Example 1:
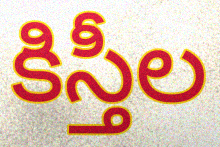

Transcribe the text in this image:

కిస్తీల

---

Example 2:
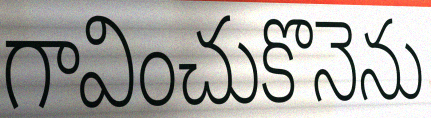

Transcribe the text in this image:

గావించుకొనెను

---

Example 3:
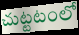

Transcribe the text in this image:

చుట్టటంలో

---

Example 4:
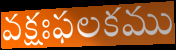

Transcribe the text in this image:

వక్షఃఫలకము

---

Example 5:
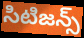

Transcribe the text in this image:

సిటిజన్స్